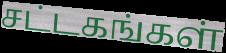
சட்டகங்கள்